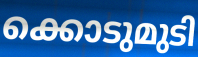
ക്കൊടുമുടി